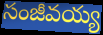
సంజీవయ్య